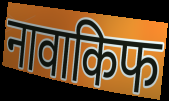
नावाकिफ